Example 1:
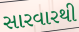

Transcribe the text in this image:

સારવારથી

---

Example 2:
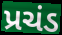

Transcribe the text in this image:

પ્રચંડ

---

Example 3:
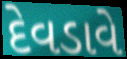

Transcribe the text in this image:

દેવડાવે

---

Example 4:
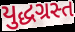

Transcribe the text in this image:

યુદ્ધગ્રસ્ત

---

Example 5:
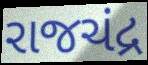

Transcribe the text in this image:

રાજચંદ્ર